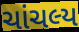
ચાંચલ્ય